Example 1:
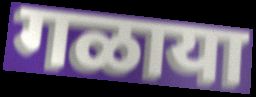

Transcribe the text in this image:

गळाया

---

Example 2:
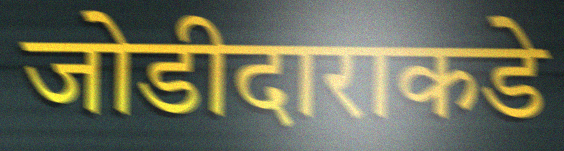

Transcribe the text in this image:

जोडीदाराकडे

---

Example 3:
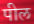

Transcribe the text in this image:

पील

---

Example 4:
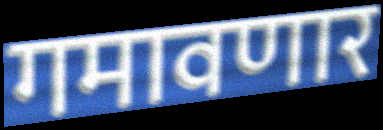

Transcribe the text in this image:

गमावणार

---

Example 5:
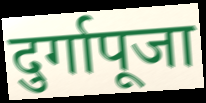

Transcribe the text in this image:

दुर्गापूजा